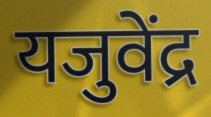
यजुवेंद्र